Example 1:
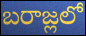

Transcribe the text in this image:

బరాజ్లలో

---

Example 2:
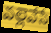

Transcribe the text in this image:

వల్లెవేసే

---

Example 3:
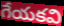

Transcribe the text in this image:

గేయకవి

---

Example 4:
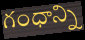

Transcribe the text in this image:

గంధాన్ని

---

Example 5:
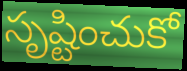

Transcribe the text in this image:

సృష్టించుకో